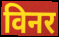
विनर